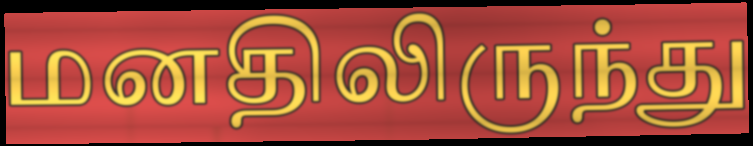
மனதிலிருந்து